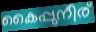
കൈപ്പുനീര്